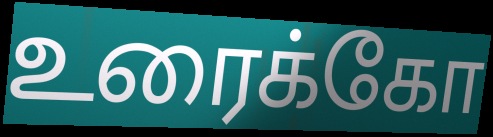
உரைக்கோ